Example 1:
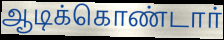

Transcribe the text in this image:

ஆடிக்கொண்டார்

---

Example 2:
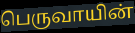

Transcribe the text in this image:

பெருவாயின்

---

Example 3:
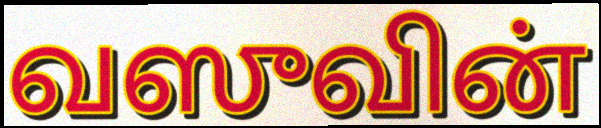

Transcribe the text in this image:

வஸுவின்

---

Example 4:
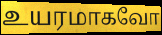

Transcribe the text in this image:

உயரமாகவோ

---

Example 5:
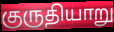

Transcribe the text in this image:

குருதியாறு